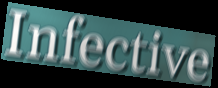
Infective